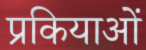
प्रकियाओं